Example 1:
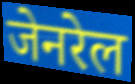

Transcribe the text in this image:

जेनरेल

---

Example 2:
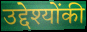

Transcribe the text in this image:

उद्देश्योंकी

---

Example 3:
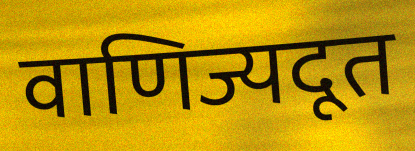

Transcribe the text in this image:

वाणिज्यदूत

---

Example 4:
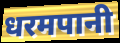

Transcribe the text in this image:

धरमपानी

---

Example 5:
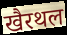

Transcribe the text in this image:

खैरथल